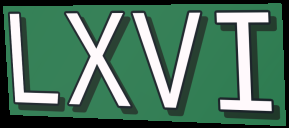
LXVI